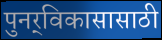
पुनर्विकासासाठी